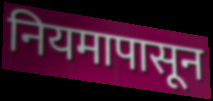
नियमापासून